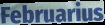
Februarius